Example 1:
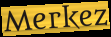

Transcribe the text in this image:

Merkez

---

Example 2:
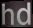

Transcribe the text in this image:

hd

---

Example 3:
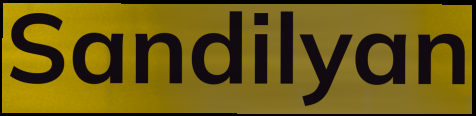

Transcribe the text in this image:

Sandilyan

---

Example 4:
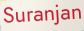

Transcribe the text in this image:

Suranjan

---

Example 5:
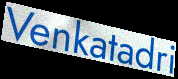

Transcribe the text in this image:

Venkatadri